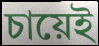
চায়েই